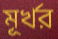
মূর্খর